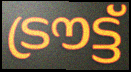
ട്രൗട്ട്